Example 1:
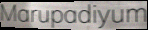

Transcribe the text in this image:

Marupadiyum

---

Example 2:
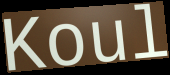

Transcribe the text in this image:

Koul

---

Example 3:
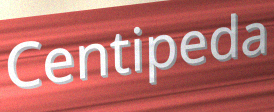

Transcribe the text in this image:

Centipeda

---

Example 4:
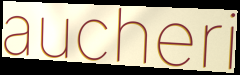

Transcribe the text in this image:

aucheri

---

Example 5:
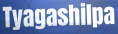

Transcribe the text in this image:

Tyagashilpa